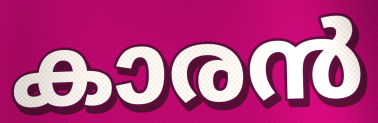
കാരൻ